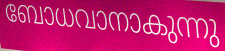
ബോധവാനാകുന്നു